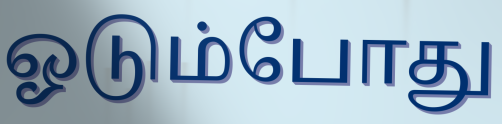
ஓடும்போது